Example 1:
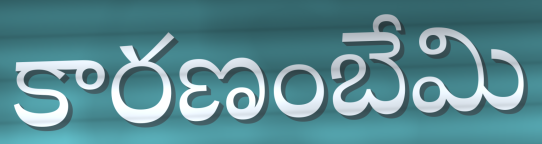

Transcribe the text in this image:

కారణంబేమి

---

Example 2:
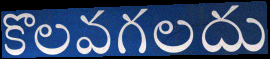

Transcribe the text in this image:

కొలవగలదు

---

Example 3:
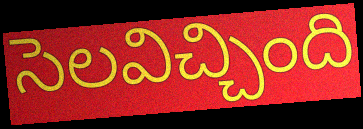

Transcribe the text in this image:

సెలవిచ్చింది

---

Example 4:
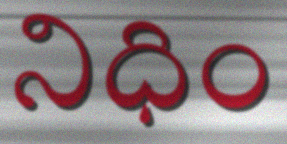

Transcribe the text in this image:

నిధిం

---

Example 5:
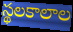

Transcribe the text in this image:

స్థలకాలాల